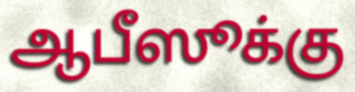
ஆபீஸூக்கு